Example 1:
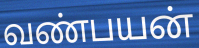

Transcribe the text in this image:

வண்பயன்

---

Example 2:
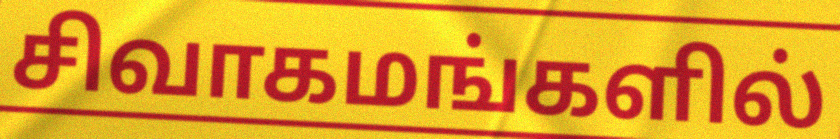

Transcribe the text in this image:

சிவாகமங்களில்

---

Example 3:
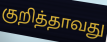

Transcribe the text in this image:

குறித்தாவது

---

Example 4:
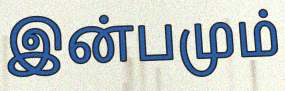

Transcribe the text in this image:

இன்பமும்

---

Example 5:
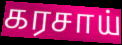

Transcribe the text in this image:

கரசாய்